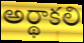
అర్థాకలి